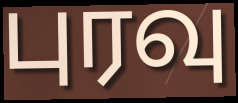
புரவு